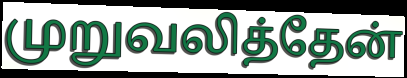
முறுவலித்தேன்